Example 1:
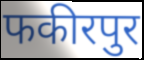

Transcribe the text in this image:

फकीरपुर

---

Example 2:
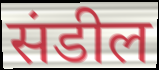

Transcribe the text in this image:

संडील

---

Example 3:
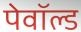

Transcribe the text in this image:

पेवॉल्ड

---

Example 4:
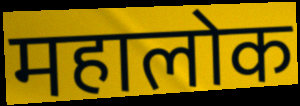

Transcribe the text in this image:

महालोक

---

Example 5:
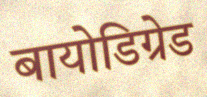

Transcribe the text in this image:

बायोडिग्रेड